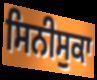
ਸਿਨੀਸੁਕਾ